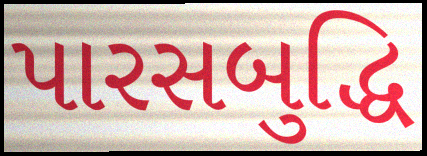
પારસબુદ્ધિ